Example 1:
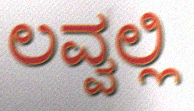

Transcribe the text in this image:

ಲವ್ವಲ್ಲಿ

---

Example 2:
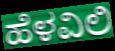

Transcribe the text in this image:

ಹೆಳವಿಲಿ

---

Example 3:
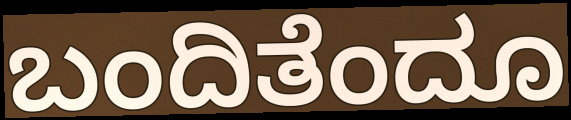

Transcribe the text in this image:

ಬಂದಿತೆಂದೂ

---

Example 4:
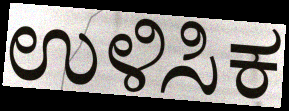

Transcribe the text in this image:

ಉಳಿಸಿಕ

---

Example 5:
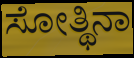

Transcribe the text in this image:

ಸೋತ್ಥಿನಾ